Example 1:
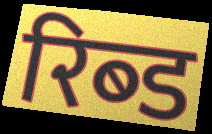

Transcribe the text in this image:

रिब्ड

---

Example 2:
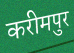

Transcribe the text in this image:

करीमपुर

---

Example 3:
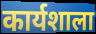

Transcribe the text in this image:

कार्यशाला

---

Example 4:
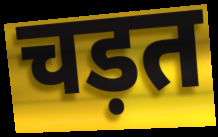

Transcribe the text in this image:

चड़त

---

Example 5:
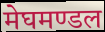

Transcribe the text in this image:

मेघमण्डल